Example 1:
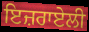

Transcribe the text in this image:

ਇਜ਼ਰਾਏਲੀ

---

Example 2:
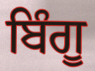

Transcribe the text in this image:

ਬਿੰਗੂ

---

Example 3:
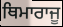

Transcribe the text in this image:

ਥਿਮਾਰਾਜੂ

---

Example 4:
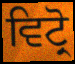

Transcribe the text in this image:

ਵਿਟ੍ਰੋ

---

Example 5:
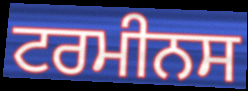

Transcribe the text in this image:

ਟਰਮੀਨਸ